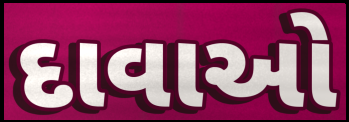
દાવાઓ